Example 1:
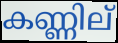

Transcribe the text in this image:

കണ്ണില്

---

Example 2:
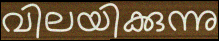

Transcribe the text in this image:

വിലയിക്കുന്നു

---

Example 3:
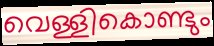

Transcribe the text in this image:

വെള്ളികൊണ്ടും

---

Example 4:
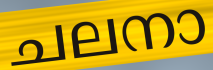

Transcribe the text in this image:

ചലനാ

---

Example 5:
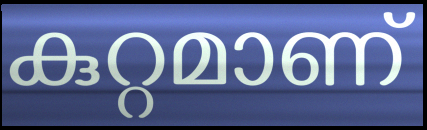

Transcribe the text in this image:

കുറ്റമാണ്